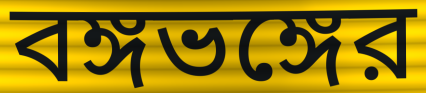
বঙ্গভঙ্গের